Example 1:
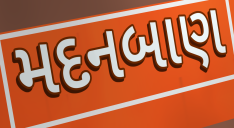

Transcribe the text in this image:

મદનબાણ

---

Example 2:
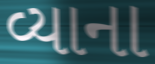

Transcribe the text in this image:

વ્યાના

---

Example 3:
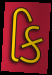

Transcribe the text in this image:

કિ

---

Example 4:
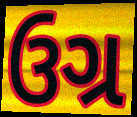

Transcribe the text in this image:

ઉગ્ર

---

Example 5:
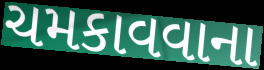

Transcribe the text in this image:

ચમકાવવાના